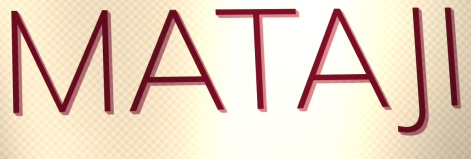
MATAJI